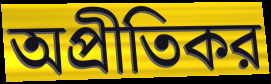
অপ্রীতিকর